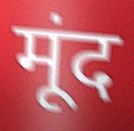
मूंद